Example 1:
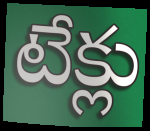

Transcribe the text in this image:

టేక్లు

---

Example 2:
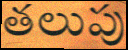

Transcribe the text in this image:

తలుపు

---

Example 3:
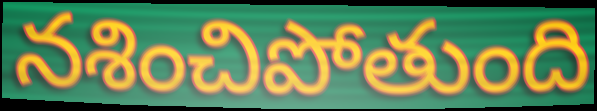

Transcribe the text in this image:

నశించిపోతుంది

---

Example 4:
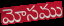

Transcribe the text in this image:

మోసము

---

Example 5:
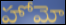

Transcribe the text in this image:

హోమో